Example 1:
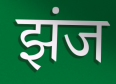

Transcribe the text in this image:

झंज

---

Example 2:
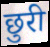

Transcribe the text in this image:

छुरी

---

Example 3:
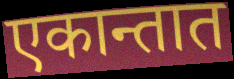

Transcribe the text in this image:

एकान्तात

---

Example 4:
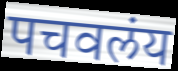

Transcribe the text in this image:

पचवलंय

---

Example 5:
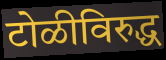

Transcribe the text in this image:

टोळीविरुद्ध